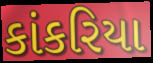
કાંકરિયા